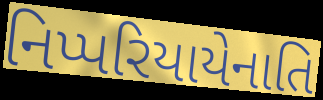
નિપ્પરિયાયેનાતિ